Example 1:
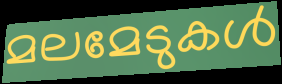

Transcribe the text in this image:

മലമേടുകൾ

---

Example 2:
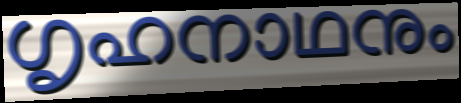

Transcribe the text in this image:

ഗൃഹനാഥനും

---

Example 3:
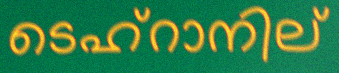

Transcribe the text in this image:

ടെഹ്റാനില്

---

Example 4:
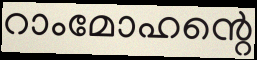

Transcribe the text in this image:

റാംമോഹന്റെ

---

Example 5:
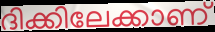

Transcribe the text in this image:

ദിക്കിലേക്കാണ്